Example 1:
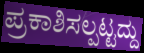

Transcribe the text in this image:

ಪ್ರಕಾಶಿಸಲ್ಪಟ್ಟದ್ದು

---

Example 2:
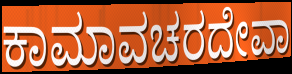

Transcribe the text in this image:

ಕಾಮಾವಚರದೇವಾ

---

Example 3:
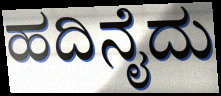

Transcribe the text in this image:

ಹದಿನೈದು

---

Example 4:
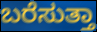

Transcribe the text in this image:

ಬರೆಸುತ್ತಾ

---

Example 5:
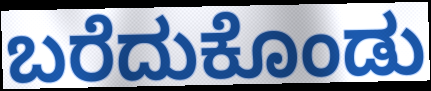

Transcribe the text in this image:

ಬರೆದುಕೊಂಡು